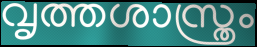
വൃത്തശാസ്ത്രം